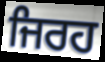
ਜਿਰਹ